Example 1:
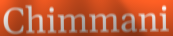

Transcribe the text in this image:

Chimmani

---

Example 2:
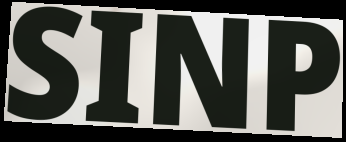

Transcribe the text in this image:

SINP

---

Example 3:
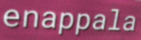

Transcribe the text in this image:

enappala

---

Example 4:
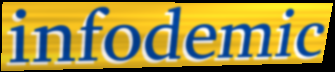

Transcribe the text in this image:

infodemic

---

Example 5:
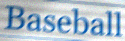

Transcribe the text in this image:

Baseball